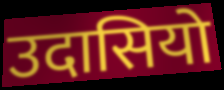
उदासियो